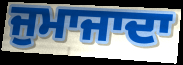
ਜੁਮਾਜਾਦਾ